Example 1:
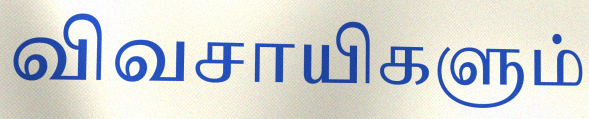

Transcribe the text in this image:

விவசாயிகளும்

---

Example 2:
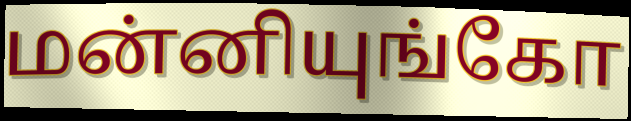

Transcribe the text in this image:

மன்னியுங்கோ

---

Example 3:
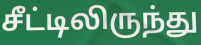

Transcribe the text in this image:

சீட்டிலிருந்து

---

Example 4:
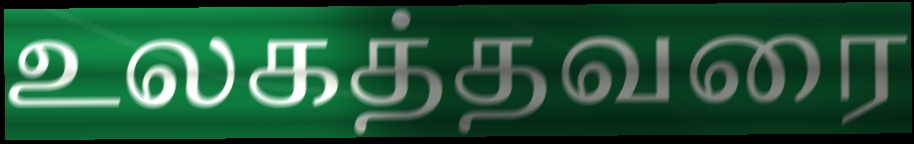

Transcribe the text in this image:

உலகத்தவரை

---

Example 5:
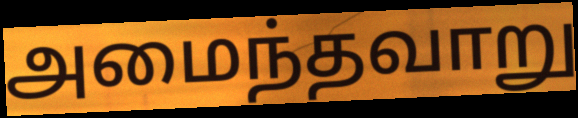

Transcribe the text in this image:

அமைந்தவாறு